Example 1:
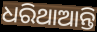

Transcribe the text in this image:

ଧରିଥାଆନ୍ତି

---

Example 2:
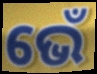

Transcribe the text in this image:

ଭେଁ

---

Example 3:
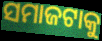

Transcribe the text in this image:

ସମାଜଟାକୁ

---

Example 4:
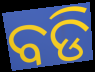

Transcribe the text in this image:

ବଡି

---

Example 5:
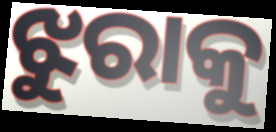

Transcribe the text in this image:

ଝୁରାକୁ